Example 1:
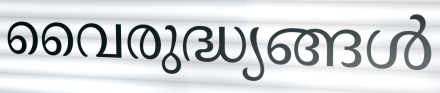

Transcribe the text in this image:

വൈരുദ്ധ്യങ്ങൾ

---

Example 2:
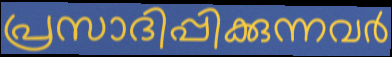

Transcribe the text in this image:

പ്രസാദിപ്പിക്കുന്നവർ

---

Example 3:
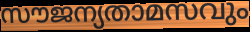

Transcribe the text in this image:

സൗജന്യതാമസവും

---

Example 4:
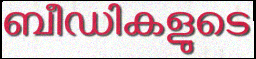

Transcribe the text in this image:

ബീഡികളുടെ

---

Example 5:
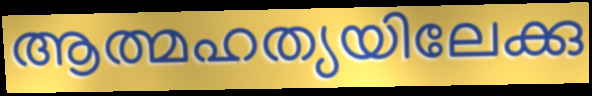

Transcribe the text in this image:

ആത്മഹത്യയിലേക്കു